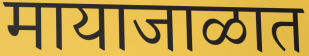
मायाजाळात